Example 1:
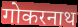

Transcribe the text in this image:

गोकरनाथ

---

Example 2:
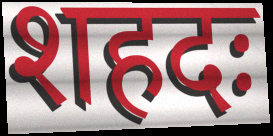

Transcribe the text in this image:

शहदः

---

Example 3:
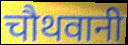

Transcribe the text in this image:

चौथवानी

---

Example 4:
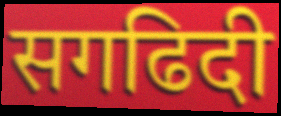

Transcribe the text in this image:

सगढिदी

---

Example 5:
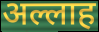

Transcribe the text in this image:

अल्लाह